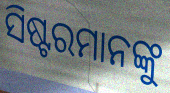
ସିଷ୍ଟରମାନଙ୍କୁ